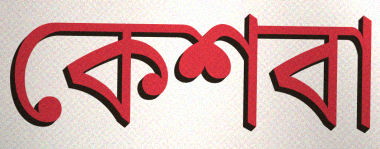
কেশবা